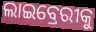
ଲାଇବ୍ରେରୀକୁ